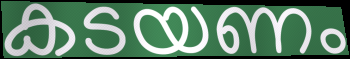
കടയണം